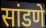
सांडणे